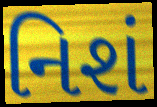
નિશં